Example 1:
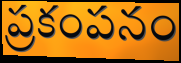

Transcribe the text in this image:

ప్రకంపనం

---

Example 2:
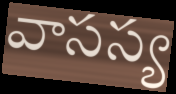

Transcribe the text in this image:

వాసస్య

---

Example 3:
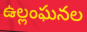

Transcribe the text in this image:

ఉల్లంఘనల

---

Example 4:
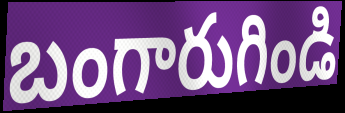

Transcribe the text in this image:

బంగారుగిండి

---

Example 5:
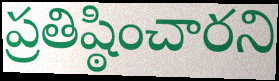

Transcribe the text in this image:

ప్రతిష్ఠించారని